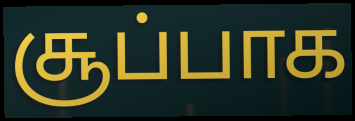
சூப்பாக